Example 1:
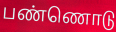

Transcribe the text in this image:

பண்ணொடு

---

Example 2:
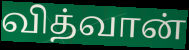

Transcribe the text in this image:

வித்வான்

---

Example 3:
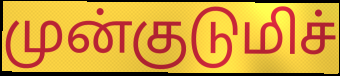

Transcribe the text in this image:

முன்குடுமிச்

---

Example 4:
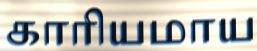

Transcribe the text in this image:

காரியமாய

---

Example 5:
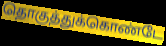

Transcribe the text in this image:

தொகுத்துக்கொண்டே